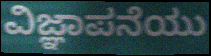
ವಿಜ್ಞಾಪನೆಯು